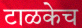
टाळकेच